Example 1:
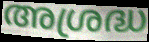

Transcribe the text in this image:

അശ്രദ്ധ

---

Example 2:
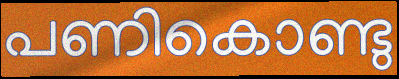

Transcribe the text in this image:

പണികൊണ്ടു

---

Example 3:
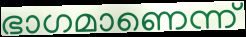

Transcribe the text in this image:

ഭാഗമാണെന്ന്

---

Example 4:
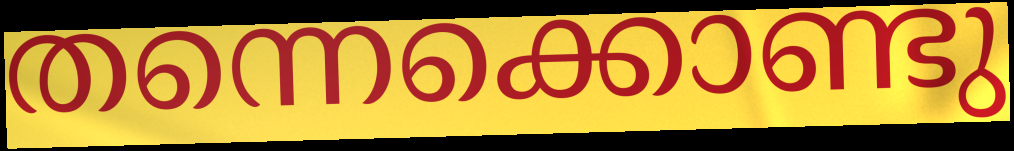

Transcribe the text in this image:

തന്നെക്കൊണ്ടു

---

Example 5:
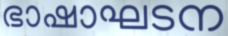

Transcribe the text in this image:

ഭാഷാഘടന